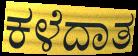
ಕಳೆದಾತ